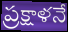
ప్రక్షాళనే